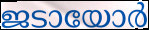
ജടായോർ